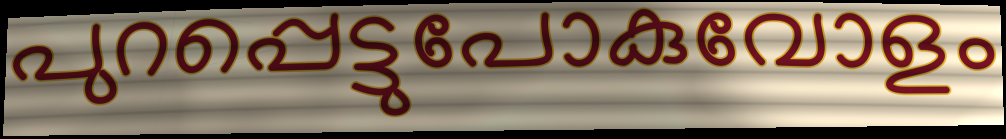
പുറപ്പെട്ടുപോകുവോളം